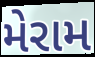
મેરામ